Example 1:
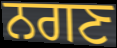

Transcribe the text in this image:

ਨਗਣ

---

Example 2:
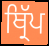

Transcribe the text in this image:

ਥ੍ਰਿੱਪ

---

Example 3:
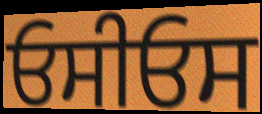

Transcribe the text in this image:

ਓਸੀਓਸ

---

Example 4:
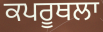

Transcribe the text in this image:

ਕਪਰੂਥਲਾ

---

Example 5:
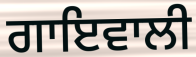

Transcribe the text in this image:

ਗਾਇਵਾਲੀ